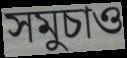
সমুচাও